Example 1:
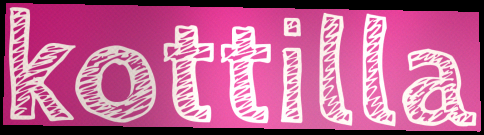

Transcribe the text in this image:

kottilla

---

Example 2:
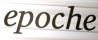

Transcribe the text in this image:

epoche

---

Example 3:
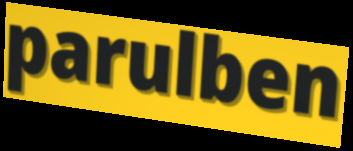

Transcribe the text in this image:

parulben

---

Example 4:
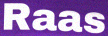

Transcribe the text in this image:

Raas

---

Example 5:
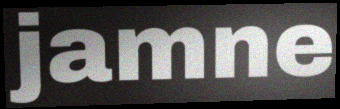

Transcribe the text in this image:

jamne